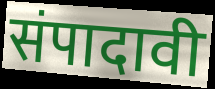
संपादावी